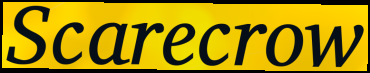
Scarecrow